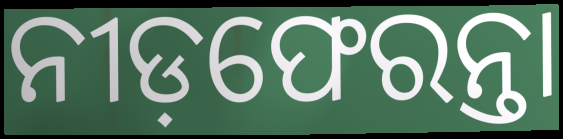
ନୀଡ଼ଫେରନ୍ତା